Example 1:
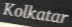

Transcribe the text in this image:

Kolkatar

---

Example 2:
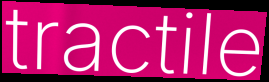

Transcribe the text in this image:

tractile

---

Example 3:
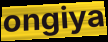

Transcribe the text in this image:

ongiya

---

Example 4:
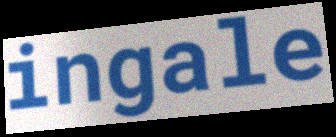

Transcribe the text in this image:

ingale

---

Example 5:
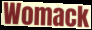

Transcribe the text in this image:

Womack